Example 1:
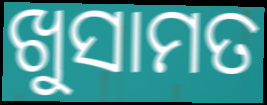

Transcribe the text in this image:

ଖୁସାମତ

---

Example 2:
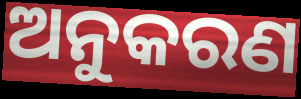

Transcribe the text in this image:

ଅନୁକରଣ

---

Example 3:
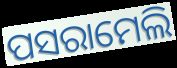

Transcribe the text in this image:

ପସରାମେଲି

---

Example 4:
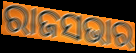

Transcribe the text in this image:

ରାଜସଭାର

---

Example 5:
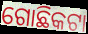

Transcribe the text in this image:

ଗୋଛିକଟା